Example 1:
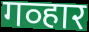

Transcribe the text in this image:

गव्हार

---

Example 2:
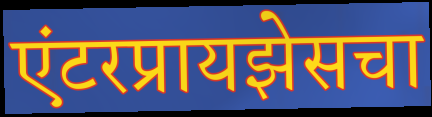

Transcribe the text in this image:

एंटरप्रायझेसचा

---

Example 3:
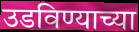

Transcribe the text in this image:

उडविण्याच्या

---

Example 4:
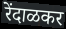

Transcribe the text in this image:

रेंदाळकर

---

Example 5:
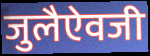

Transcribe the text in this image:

जुलैऐवजी